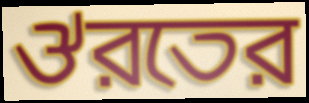
ঔরতের